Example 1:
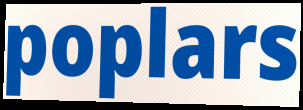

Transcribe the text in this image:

poplars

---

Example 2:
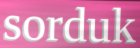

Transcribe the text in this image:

sorduk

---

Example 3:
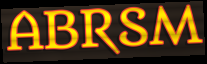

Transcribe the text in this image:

ABRSM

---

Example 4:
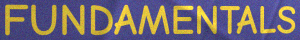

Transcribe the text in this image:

FUNDAMENTALS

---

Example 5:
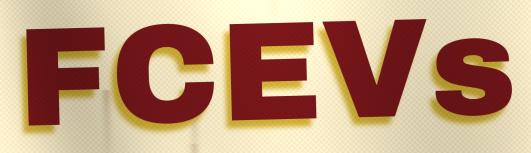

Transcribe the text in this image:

FCEVs